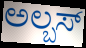
ಅಲ್ಬಸ್